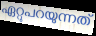
ഏറ്റുപറയുന്നത്